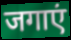
जगाएं